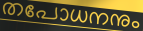
തപോധനനും